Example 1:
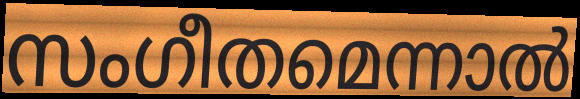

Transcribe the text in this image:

സംഗീതമെന്നാൽ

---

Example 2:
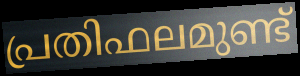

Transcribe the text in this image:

പ്രതിഫലമുണ്ട്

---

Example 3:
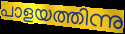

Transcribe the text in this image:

പാളയത്തിന്നു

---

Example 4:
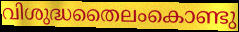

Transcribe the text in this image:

വിശുദ്ധതൈലംകൊണ്ടു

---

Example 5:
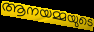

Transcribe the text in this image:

ആനയമ്മയുടെ